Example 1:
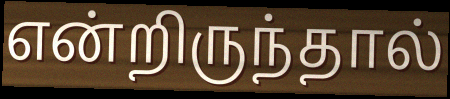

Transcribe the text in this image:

என்றிருந்தால்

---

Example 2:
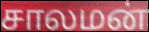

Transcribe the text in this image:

சாலமன்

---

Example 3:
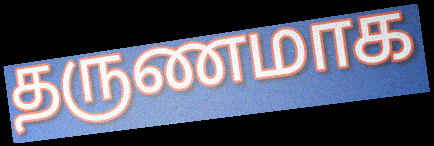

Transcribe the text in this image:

தருணமாக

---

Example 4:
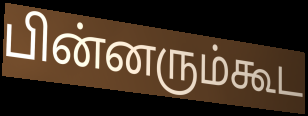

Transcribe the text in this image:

பின்னரும்கூட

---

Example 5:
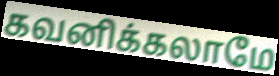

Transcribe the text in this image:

கவனிக்கலாமே